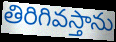
తిరిగివస్తాను